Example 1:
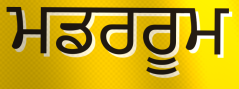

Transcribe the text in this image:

ਮਡਰਰੂਮ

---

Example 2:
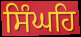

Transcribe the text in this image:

ਸਿੰਘਹਿ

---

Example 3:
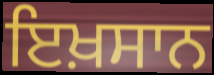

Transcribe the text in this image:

ਇਖ਼ਸਾਨ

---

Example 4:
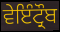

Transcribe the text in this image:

ਵੇਇੰਟ੍ਰੌਬ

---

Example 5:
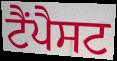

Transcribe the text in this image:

ਟੈਂਪੈਸਟ